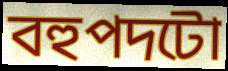
বহুপদটো